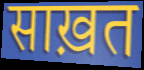
साख़त